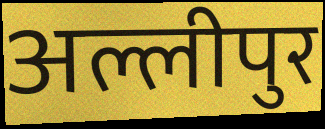
अल्लीपुर